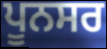
ਪੂਨਸਰ